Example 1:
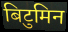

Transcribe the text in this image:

बिटुमिन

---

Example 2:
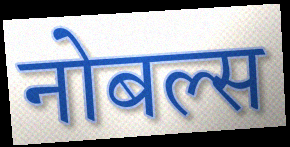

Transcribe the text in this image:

नोबल्स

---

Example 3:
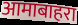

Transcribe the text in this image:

आमाबाहरा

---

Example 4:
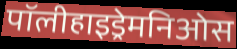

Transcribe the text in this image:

पॉलीहाइड्रेमनिओस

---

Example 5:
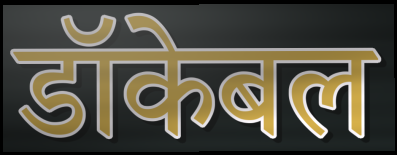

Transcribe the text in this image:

डॉकेबल